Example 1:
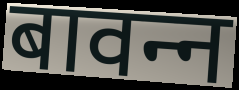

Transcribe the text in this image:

बावन्न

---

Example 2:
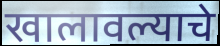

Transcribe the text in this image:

खालावल्याचे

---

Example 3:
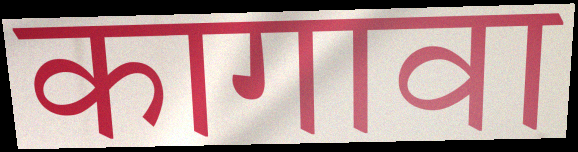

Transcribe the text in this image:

कागावा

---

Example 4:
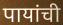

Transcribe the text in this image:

पायांची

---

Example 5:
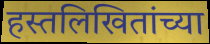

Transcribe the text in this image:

हस्तलिखितांच्या